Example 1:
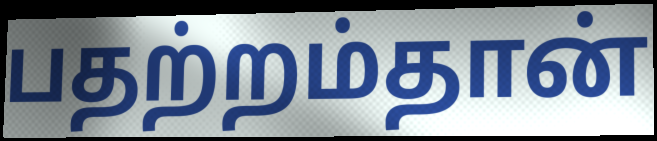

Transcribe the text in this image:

பதற்றம்தான்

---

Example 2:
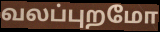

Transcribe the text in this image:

வலப்புறமோ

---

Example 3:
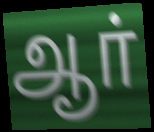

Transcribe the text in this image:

ஆர்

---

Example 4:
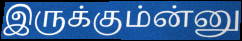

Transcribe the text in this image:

இருக்கும்ன்னு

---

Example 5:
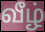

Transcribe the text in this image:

வீழ்